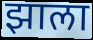
झाला